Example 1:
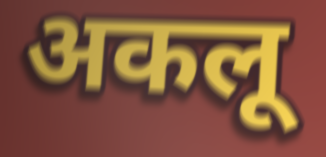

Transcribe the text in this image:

अकलू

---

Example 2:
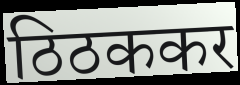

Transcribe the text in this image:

ठिठककर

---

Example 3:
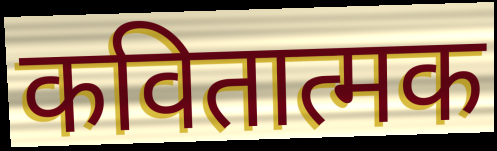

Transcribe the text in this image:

कवितात्मक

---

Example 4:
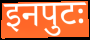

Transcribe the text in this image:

इनपुटः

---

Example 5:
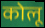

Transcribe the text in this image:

कोलू